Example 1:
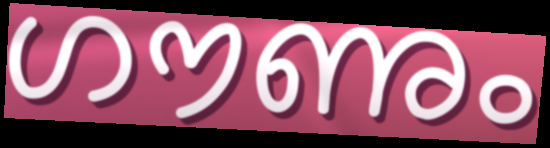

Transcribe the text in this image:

ഗൗണും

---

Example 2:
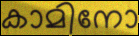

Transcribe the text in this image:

കാമിനോ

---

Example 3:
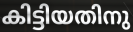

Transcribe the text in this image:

കിട്ടിയതിനു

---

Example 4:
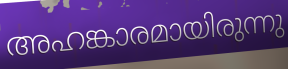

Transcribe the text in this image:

അഹങ്കാരമായിരുന്നു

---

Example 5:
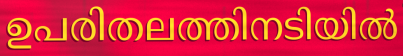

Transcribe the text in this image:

ഉപരിതലത്തിനടിയിൽ